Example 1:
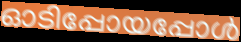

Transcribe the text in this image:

ഓടിപ്പോയപ്പോൾ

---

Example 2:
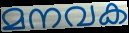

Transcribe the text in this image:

മനവക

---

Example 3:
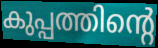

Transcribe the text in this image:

കുപ്പത്തിന്റെ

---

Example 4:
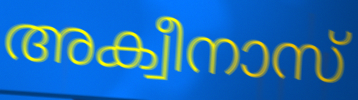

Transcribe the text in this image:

അക്വീനാസ്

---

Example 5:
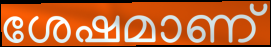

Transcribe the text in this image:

ശേഷമാണ്